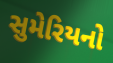
સુમેરિયનો